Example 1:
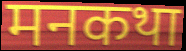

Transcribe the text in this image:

मनकथा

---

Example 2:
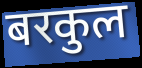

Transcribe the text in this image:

बरकुल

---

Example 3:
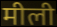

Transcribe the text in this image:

मीली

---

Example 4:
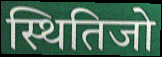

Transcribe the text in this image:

स्थितिजो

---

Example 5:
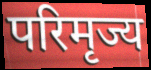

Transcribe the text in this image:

परिमृज्य